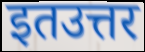
इतउत्तर